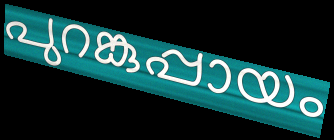
പുറങ്കുപ്പായം